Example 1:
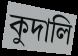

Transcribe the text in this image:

কুদালি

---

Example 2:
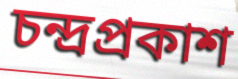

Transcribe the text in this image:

চন্দ্ৰপ্ৰকাশ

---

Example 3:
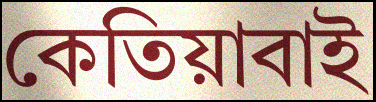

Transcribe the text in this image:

কেতিয়াবাই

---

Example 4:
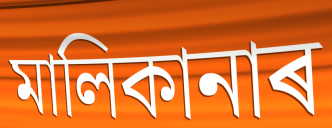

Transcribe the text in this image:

মালিকানাৰ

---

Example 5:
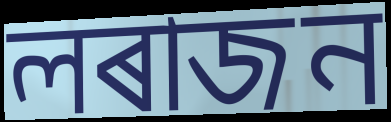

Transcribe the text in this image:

লৰাজন